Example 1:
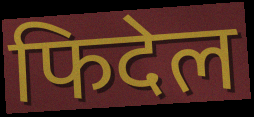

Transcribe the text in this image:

फिदेल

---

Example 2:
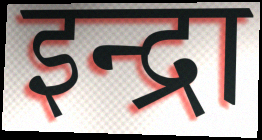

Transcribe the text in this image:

इन्द्रा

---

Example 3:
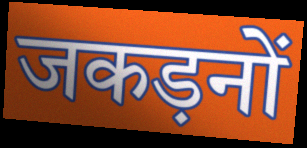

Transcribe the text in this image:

जकड़नों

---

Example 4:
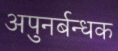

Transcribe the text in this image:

अपुनर्बन्धक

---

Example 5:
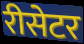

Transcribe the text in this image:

रीसेटर